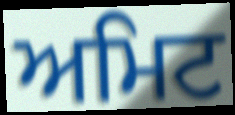
ਅਮਿਟ